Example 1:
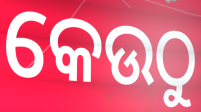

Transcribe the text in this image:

କେଉଠୁ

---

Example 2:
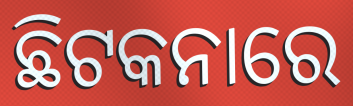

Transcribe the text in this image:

ଛିଟକନାରେ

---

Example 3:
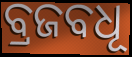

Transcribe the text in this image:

ବ୍ରଜବଧୂ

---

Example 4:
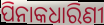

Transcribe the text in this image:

ପିନାକଧାରିଣୀ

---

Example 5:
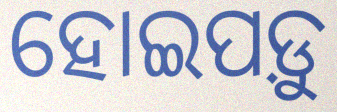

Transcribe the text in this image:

ହୋଇପଡ଼ୁ